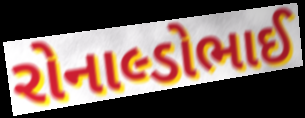
રોનાલ્ડોભાઈ